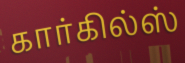
கார்கில்ஸ்